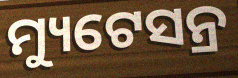
ମ୍ୟୁଟେସନ୍ର